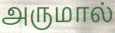
அருமால்